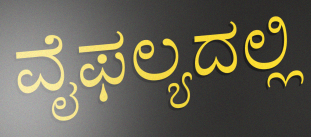
ವೈಫಲ್ಯದಲ್ಲಿ